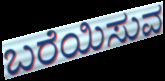
ಬರೆಯಿಸುವ